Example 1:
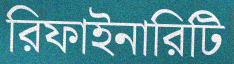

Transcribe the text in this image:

রিফাইনারিটি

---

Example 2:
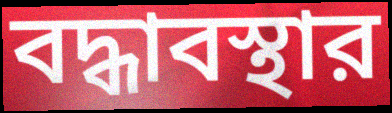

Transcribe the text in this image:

বদ্ধাবস্থার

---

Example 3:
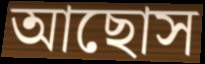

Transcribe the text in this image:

আছোস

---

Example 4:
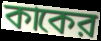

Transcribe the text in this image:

কাকের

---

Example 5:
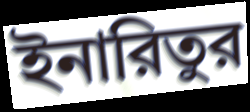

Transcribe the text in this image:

ইনারিতুর